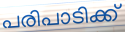
പരിപാടിക്ക്